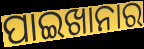
ପାଇଖାନାର